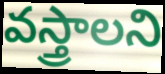
వస్త్రాలని